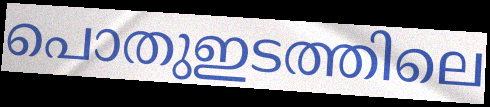
പൊതുഇടത്തിലെ